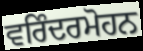
ਵਰਿੰਦਰਮੋਹਨ